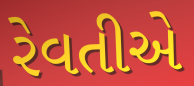
રેવતીએ